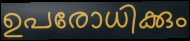
ഉപരോധിക്കും